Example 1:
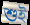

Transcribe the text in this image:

শুই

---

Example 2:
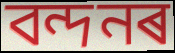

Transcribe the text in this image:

বন্দনৰ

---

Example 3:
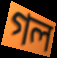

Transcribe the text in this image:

গল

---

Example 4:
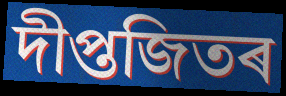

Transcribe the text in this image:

দীপ্তজিতৰ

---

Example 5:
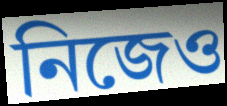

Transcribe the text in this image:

নিজেও